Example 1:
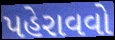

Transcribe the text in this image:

પહેરાવવો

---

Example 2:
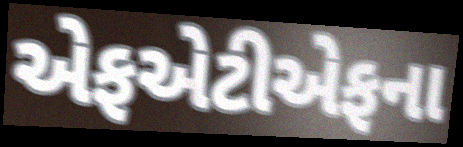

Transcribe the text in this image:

એફએટીએફના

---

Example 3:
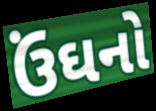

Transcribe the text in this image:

ઉંઘનો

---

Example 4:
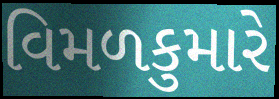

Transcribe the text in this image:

વિમળકુમારે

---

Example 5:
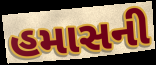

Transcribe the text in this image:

હમાસની